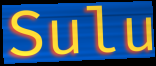
Sulu